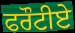
ਫਰੌਟੀਏ